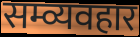
सम्व्यवहार